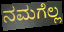
ನಮಗೆಲ್ಲ